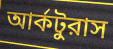
আর্কটুরাস